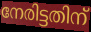
നേരിട്ടതിന്